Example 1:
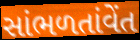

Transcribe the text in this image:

સાંભળતાંવેંત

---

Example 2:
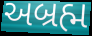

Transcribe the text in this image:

અબ્રહ્મ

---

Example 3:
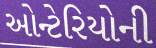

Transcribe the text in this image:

ઓન્ટેરિયોની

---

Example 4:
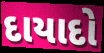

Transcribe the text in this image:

દાયાદો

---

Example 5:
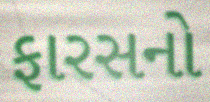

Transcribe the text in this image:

ફારસનો